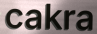
cakra